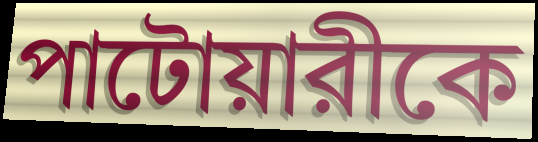
পাটোয়ারীকে